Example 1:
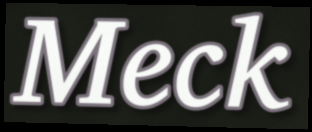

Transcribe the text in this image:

Meck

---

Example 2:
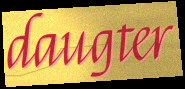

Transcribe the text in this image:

daugter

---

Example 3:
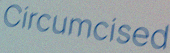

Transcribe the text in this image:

Circumcised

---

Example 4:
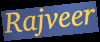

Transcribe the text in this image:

Rajveer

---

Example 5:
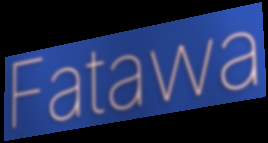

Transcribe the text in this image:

Fatawa